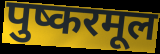
पुष्करमूल